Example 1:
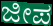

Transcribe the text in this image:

ಜೀಪ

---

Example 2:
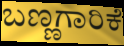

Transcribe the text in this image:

ಬಣ್ಣಗಾರಿಕೆ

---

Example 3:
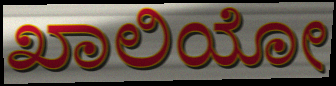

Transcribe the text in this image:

ಖಾಲಿಯೋ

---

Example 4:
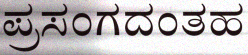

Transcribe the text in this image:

ಪ್ರಸಂಗದಂತಹ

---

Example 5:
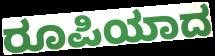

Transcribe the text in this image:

ರೂಪಿಯಾದ